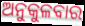
ଅନୁକୁଳବାର